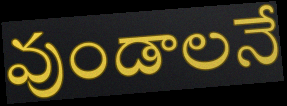
వుండాలనే